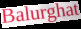
Balurghat